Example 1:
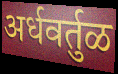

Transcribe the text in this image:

अर्धवर्तुळ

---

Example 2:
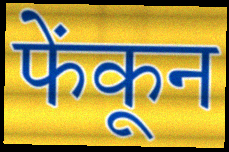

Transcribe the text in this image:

फेंकून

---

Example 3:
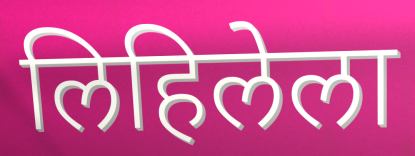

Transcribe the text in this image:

लिहिलेला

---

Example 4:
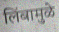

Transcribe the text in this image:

लिंबामुळे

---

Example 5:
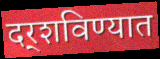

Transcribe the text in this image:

दर्शविण्यात